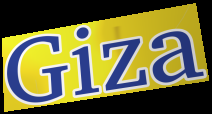
Giza